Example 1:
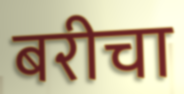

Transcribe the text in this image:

बरीचा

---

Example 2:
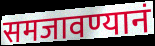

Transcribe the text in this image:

समजावण्यानं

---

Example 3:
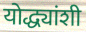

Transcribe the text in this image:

योद्ध्यांशी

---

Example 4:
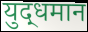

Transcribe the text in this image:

युद्धमान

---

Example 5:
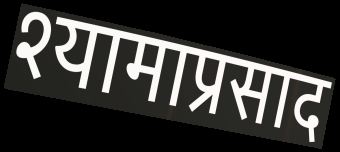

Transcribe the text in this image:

श्यामाप्रसाद